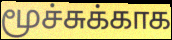
மூச்சுக்காக